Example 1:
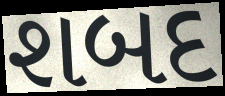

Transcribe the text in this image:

શબદ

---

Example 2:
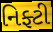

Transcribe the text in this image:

નિફ્ટી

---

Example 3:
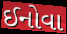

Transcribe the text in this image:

ઈનોવા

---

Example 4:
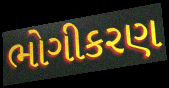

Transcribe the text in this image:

ભોગીકરણ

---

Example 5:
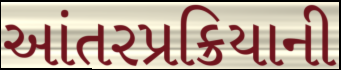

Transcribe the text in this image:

આંતરપ્રક્રિયાની